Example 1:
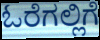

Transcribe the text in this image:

ಓರೆಗಲ್ಲಿಗೆ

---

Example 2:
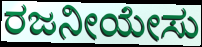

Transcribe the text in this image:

ರಜನೀಯೇಸು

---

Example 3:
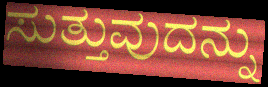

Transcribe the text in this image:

ಸುತ್ತುವುದನ್ನು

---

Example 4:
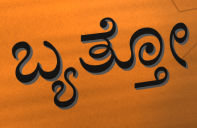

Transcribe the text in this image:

ಬ್ಯತ್ತೋ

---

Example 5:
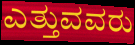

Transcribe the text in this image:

ಎತ್ತುವವರು